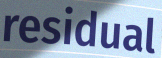
residual